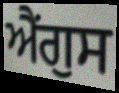
ਐਂਗੁਸ